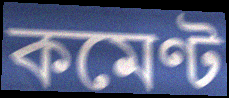
কমেণ্ট